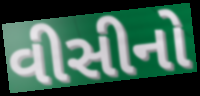
વીસીનો